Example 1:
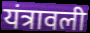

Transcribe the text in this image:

यंत्रावली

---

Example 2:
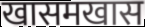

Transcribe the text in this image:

खासमखास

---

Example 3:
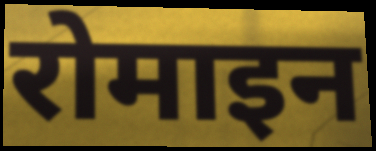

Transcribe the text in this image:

रोमाइन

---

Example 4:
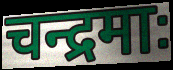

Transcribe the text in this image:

चन्द्रमाः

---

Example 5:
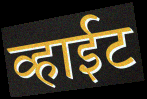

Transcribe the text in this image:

व्हाईट